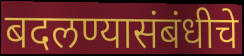
बदलण्यासंबंधीचे